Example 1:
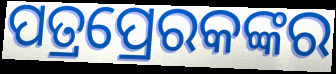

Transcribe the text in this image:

ପତ୍ରପ୍ରେରକଙ୍କର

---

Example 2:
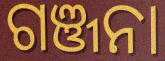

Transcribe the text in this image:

ଗଞ୍ଜନା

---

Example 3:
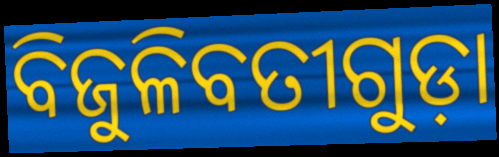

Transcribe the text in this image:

ବିଜୁଳିବତୀଗୁଡ଼ା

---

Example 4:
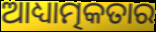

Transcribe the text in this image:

ଆଧ୍ୟାତ୍ମକତାର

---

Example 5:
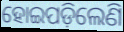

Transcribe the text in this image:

ହୋଇପଡ଼ିଲେଣି